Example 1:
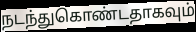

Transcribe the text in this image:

நடந்துகொண்டதாகவும்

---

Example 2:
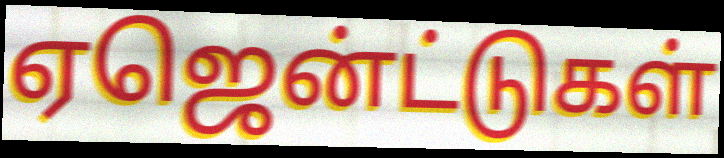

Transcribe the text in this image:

ஏஜென்ட்டுகள்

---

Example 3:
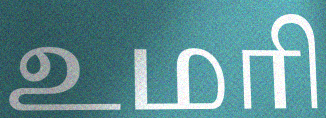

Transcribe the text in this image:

உமரி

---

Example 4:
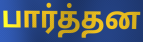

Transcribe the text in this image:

பார்த்தன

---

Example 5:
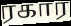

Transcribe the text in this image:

ரகார